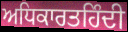
ਅਧਿਕਾਰਤਹਿੰਦੀ